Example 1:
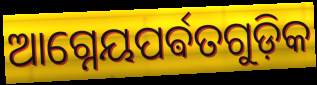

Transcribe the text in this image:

ଆଗ୍ନେୟପର୍ଵତଗୁଡ଼ିକ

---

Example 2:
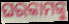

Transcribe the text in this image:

ଘରକାମକୁ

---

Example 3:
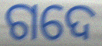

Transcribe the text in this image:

ଗଦେ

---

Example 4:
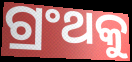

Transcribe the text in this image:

ଗ୍ରଂଥକୁ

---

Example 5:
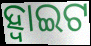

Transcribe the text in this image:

ହ୍ୱାଇଟ